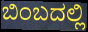
ಬಿಂಬದಲ್ಲಿ